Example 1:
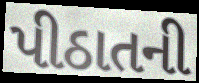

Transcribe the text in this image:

પીઠાતની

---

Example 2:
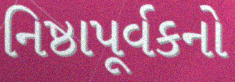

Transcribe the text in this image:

નિષ્ઠાપૂર્વકનો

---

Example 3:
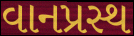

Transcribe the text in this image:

વાનપ્રસ્થ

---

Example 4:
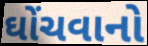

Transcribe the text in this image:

ઘોંચવાનો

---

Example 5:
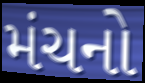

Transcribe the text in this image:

મંચનો